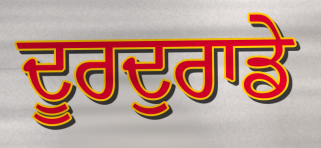
ਦੂਰਦੁਰਾਡੇ